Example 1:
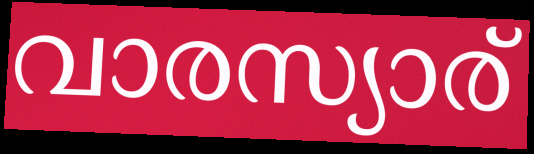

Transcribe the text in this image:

വാരസ്യാര്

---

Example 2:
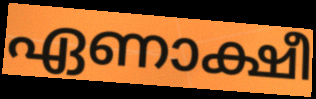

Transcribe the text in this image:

ഏണാക്ഷീ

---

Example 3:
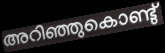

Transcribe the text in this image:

അറിഞ്ഞുകൊണ്ടു്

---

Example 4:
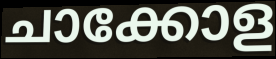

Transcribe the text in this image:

ചാക്കോള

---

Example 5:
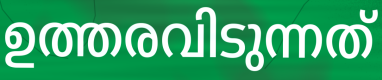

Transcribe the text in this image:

ഉത്തരവിടുന്നത്